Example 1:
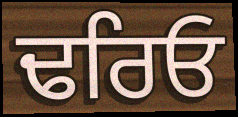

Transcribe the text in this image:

ਢਰਿਓ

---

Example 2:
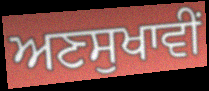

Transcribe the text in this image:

ਅਣਸੁਖਾਵੀਂ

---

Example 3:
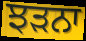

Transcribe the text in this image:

ਝੜਨਾ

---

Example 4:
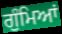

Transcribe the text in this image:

ਗੁੰਮਿਆਂ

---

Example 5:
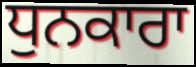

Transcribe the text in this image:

ਧੁਨਕਾਰਾ